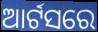
ଆର୍ଟସରେ